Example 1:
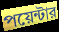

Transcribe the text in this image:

পয়েন্টার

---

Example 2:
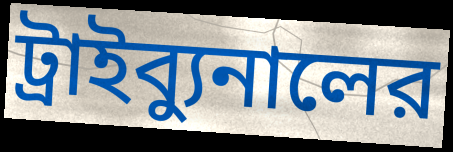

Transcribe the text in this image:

ট্রাইব্যুনালের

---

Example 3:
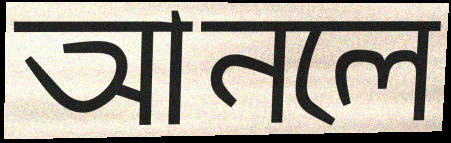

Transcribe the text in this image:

আনলে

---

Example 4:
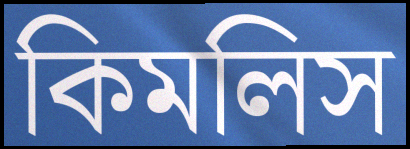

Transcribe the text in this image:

কিমলিস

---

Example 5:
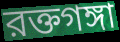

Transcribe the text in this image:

রক্তগঙ্গা